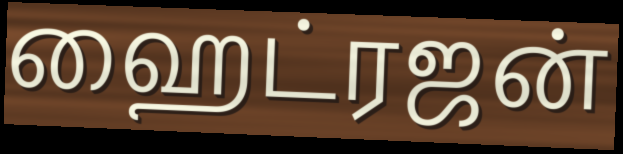
ஹைட்ரஜன்